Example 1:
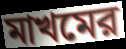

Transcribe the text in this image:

মাখমের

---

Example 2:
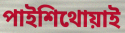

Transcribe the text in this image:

পাইশিথোয়াই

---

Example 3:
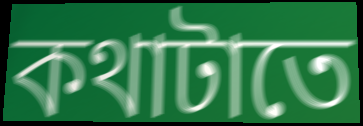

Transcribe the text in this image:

কথাটাতে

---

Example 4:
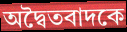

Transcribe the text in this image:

অদ্বৈতবাদকে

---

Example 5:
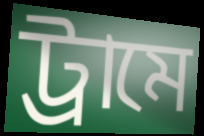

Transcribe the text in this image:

ট্রামে